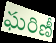
ఘరిణీ